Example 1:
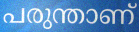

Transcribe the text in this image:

പരുന്താണ്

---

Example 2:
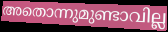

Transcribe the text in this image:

അതൊന്നുമുണ്ടാവില്ല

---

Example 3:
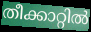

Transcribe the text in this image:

തീക്കാറ്റിൽ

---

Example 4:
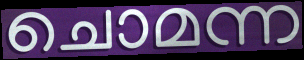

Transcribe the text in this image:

ചൊമന്ന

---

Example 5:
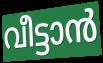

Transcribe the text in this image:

വീട്ടാൻ